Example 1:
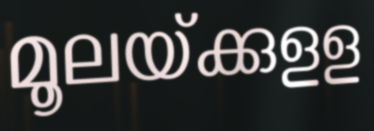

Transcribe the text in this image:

മൂലയ്‌ക്കുളള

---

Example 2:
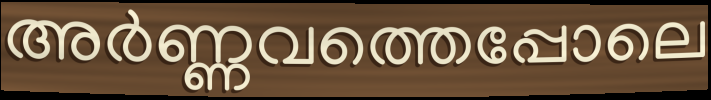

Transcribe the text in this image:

അർണ്ണവത്തെപ്പോലെ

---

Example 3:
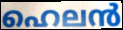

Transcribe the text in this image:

ഹെലൻ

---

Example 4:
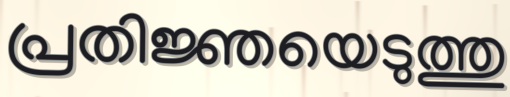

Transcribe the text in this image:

പ്രതിജ്ഞയെടുത്തു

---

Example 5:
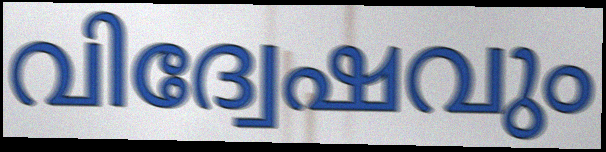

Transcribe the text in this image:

വിദ്വേഷവും